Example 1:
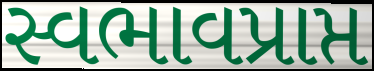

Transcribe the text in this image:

સ્વભાવપ્રાપ્ત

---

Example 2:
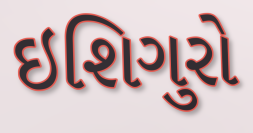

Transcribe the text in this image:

ઇશિગુરો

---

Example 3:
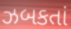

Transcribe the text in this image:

ઝબકતાં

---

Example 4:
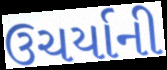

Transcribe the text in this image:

ઉચર્યાની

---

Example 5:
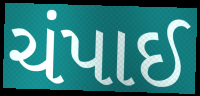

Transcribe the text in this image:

ચંપાઈ